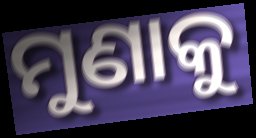
ମୁଣାକୁ